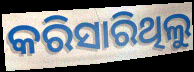
କରିସାରିଥିଲୁ